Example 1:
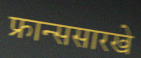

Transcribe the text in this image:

फ्रान्ससारखे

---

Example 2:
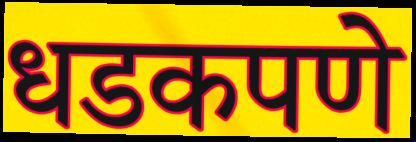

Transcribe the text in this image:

धडकपणे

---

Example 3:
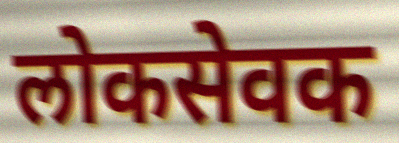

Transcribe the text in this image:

लोकसेवक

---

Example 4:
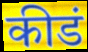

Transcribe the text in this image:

कीडं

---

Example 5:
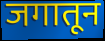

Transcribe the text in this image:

जगातून